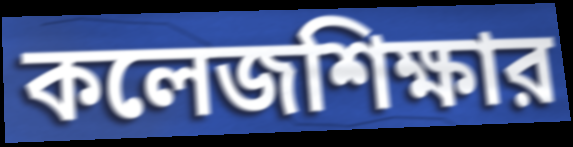
কলেজশিক্ষার